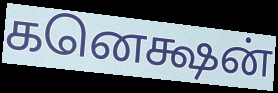
கனெக்ஷன்